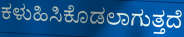
ಕಳುಹಿಸಿಕೊಡಲಾಗುತ್ತದೆ